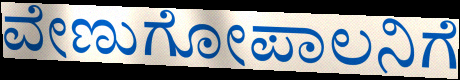
ವೇಣುಗೋಪಾಲನಿಗೆ